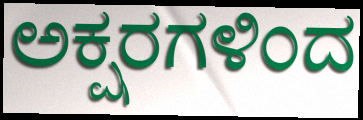
ಅಕ್ಷರಗಳಿಂದ